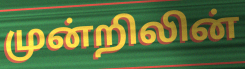
முன்றிலின்